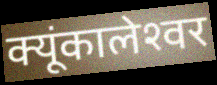
क्यूंकालेश्वर